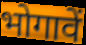
भोगावें